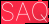
SAQ